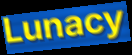
Lunacy